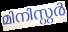
മിനിസ്റ്റർ